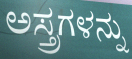
ಅಸ್ತ್ರಗಳನ್ನು